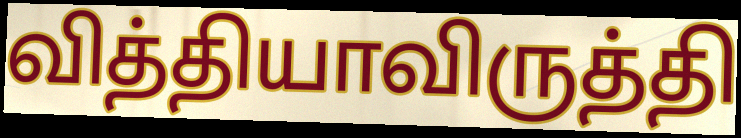
வித்தியாவிருத்தி